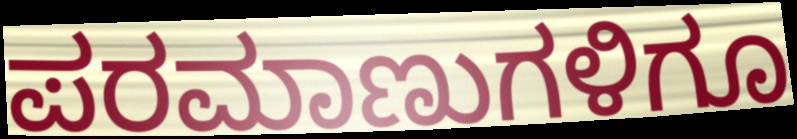
ಪರಮಾಣುಗಳಿಗೂ